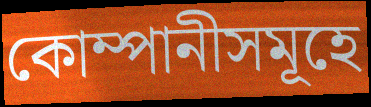
কোম্পানীসমূহে